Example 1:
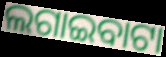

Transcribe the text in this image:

ଲଗାଇବାଟା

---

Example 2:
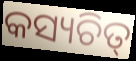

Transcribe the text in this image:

କସ୍ୟଚିତ୍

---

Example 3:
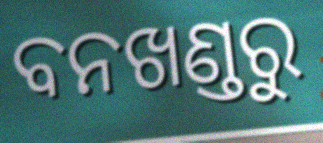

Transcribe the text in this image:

ବନଖଣ୍ଡରୁ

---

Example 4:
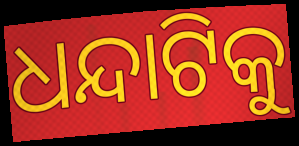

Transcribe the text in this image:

ଧନ୍ଦାଟିକୁ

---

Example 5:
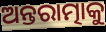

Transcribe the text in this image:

ଅନ୍ତରାତ୍ମାକୁ